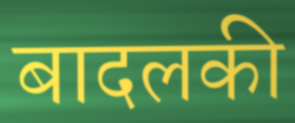
बादलकी